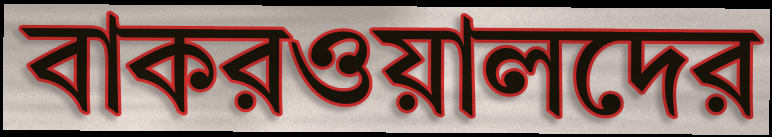
বাকরওয়ালদের